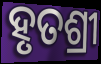
ହୃତଶ୍ରୀ